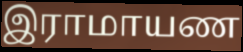
இராமாயண